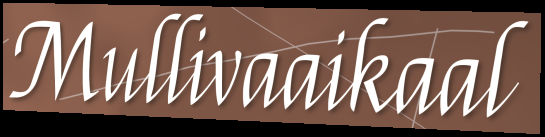
Mullivaaikaal